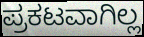
ಪ್ರಕಟವಾಗಿಲ್ಲ